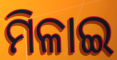
ମିଳାଇ